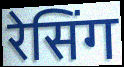
रेसिंग